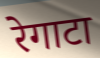
रेगाटा